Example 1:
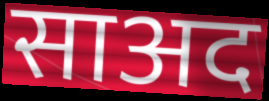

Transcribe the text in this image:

साअद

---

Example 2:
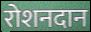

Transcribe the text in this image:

रोशनदान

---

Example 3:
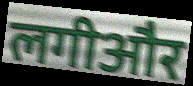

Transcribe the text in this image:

लगीऔर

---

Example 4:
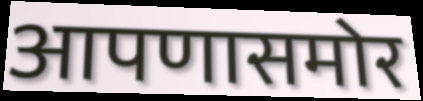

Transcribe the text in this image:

आपणासमोर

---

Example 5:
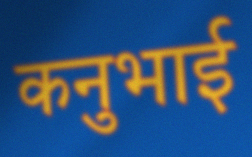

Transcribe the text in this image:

कनुभाई